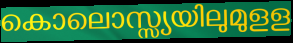
കൊലൊസ്സ്യയിലുമുളള